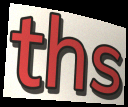
ths